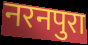
नरनपुरा